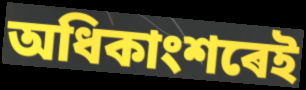
অধিকাংশৰেই